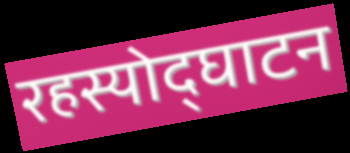
रहस्योद्घाटन